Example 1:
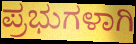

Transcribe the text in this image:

ಪ್ರಭುಗಳಾಗಿ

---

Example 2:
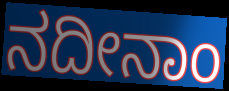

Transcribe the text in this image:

ನದೀನಾಂ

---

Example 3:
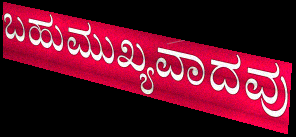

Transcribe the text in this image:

ಬಹುಮುಖ್ಯವಾದವು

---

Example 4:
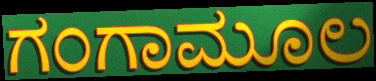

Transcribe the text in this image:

ಗಂಗಾಮೂಲ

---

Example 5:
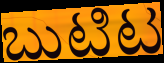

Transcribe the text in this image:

ಬುಟಿಟ